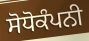
ਸੋਧੋਕੰਪਨੀ